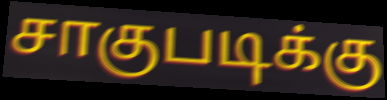
சாகுபடிக்கு